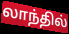
லாந்தில்